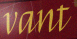
vant